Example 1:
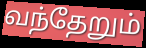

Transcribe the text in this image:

வந்தேறும்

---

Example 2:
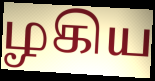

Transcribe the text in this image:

ழகிய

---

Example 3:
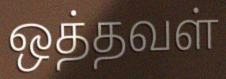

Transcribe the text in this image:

ஒத்தவள்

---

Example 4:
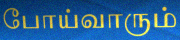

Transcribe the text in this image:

போய்வாரும்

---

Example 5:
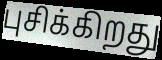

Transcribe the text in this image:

புசிக்கிறது